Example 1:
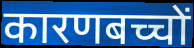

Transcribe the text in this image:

कारणबच्चों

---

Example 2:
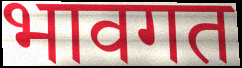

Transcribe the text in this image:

भावगत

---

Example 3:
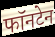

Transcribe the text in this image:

फॉनटेन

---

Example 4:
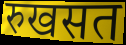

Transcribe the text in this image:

रुखसत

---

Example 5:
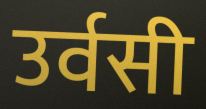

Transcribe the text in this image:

उर्वसी